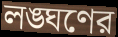
লঙ্ঘণের